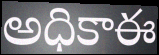
అధికాఈ